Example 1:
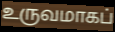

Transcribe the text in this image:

உருவமாகப்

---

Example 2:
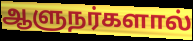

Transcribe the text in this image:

ஆளுநர்களால்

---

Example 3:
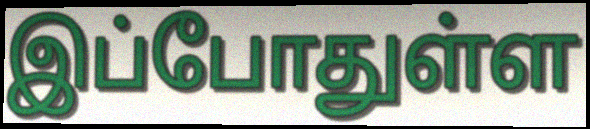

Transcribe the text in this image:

இப்போதுள்ள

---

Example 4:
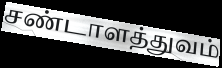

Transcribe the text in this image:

சண்டாளத்துவம்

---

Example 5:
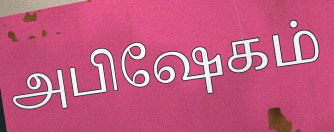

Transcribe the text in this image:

அபிஷேகம்